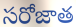
సరోజాత